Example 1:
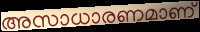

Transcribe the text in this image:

അസാധാരണമാണ്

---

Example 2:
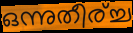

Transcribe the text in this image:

ഒന്നുതീര്ച്ച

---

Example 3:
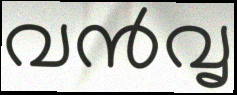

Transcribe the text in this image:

വൻവൃ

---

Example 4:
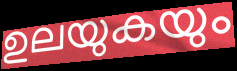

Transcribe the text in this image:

ഉലയുകയും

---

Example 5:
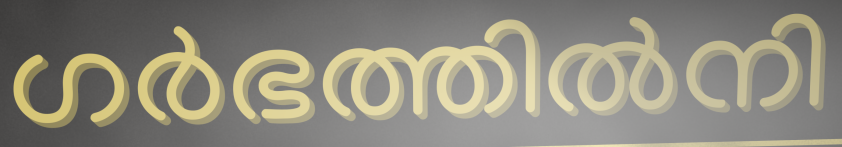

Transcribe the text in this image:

ഗർഭത്തിൽനി